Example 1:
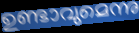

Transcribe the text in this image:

ഉണ്ടാവുമെന്നു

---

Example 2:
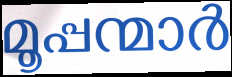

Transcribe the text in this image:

മൂപ്പന്മാർ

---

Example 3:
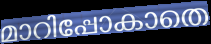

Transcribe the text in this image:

മാറിപ്പോകാതെ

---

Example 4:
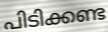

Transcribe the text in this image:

പിടിക്കണ്ട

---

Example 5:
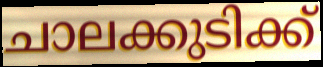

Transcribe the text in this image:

ചാലക്കുടിക്ക്